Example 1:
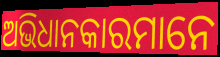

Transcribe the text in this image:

ଅଭିଧାନକାରମାନେ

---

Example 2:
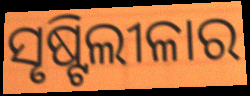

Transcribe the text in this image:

ସୃଷ୍ଟିଲୀଳାର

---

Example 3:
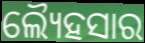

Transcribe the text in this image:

ଲ୍ୟୈହସାର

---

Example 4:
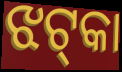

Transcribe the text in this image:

ଝଟ୍‍କା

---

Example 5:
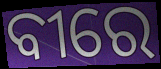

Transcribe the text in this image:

ବୀରେ